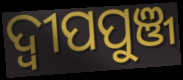
ଦ୍ୱୀପପୁଞ୍ଜ